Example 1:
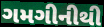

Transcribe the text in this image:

ગમગીનીથી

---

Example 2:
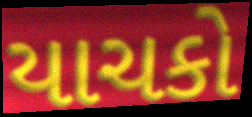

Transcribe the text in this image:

યાચકો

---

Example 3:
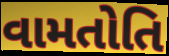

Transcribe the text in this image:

વામતોતિ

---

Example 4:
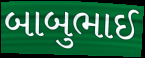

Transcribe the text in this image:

બાબુભાઈ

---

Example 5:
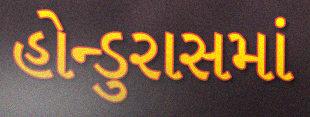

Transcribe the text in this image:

હોન્ડુરાસમાં